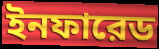
ইনফারেড